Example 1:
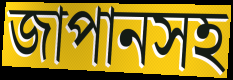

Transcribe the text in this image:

জাপানসহ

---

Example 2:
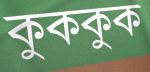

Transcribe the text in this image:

কুককুক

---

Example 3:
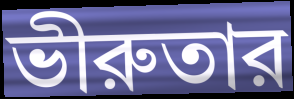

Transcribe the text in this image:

ভীরুতার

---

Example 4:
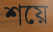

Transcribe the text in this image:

শয়ে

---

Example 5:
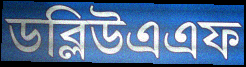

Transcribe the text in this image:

ডব্লিউএএফ